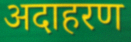
अदाहरण